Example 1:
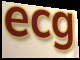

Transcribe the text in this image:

ecg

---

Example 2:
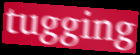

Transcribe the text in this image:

tugging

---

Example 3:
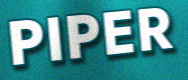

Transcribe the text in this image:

PIPER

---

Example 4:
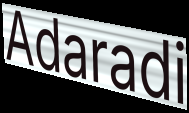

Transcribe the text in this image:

Adaradi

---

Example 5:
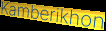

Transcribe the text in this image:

Kamberikhon